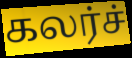
கலர்ச்